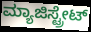
ಮ್ಯಾಜಿಸ್ಟ್ರೇಟ್